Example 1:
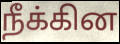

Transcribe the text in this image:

நீக்கின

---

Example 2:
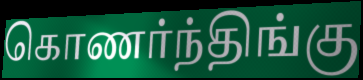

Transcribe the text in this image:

கொணர்ந்திங்கு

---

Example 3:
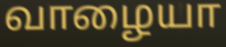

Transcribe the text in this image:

வாழையா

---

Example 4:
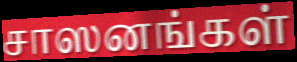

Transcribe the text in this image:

சாஸனங்கள்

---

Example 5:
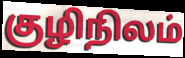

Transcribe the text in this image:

குழிநிலம்